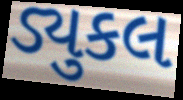
ડ્યુકલ